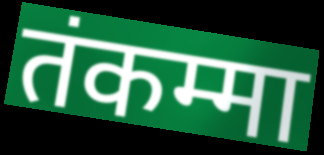
तंकम्मा